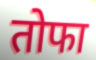
तोफा